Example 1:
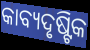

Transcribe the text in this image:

କାବ୍ୟଦୃଷ୍ଟିକ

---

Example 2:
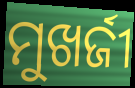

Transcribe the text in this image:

ମୁଖର୍ଜୀ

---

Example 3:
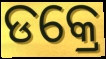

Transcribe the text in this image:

ଡକ୍ରେ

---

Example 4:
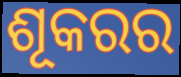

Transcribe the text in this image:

ଶୂକରର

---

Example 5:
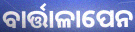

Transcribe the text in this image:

ବାର୍ତ୍ତାଳାପେନ